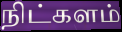
நிட்களம்